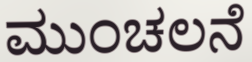
ಮುಂಚಲನೆ